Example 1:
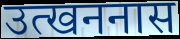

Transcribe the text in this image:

उत्खननास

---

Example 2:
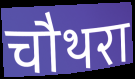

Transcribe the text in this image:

चौथरा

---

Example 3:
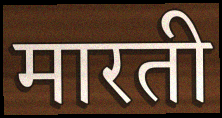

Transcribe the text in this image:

मारती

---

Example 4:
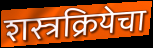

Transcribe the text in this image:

शस्त्रक्रियेचा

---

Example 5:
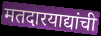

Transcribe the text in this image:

मतदारयाद्यांची